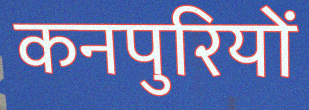
कनपुरियों